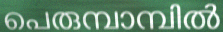
പെരുമ്പാമ്പിൽ